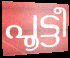
പൂട്ടീ